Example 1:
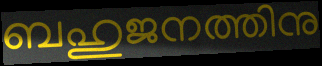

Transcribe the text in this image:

ബഹുജനത്തിനു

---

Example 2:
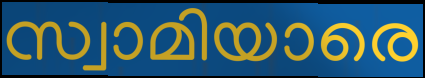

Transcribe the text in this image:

സ്വാമിയാരെ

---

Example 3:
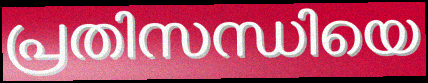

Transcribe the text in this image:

പ്രതിസന്ധിയെ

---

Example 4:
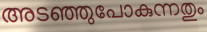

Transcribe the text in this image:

അടഞ്ഞുപോകുന്നതും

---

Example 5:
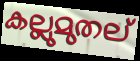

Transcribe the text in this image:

കല്ലുമുതല്